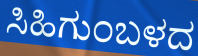
ಸಿಹಿಗುಂಬಳದ